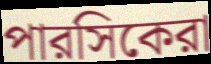
পারসিকেরা